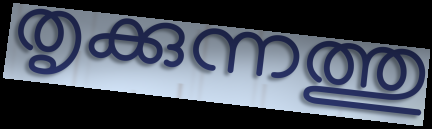
തൃക്കുന്നത്തു